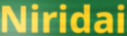
Niridai